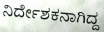
ನಿರ್ದೇಶಕನಾಗಿದ್ದ